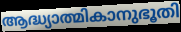
ആദ്ധ്യാത്മികാനുഭൂതി